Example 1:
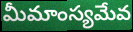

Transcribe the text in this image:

మీమాంస్యమేవ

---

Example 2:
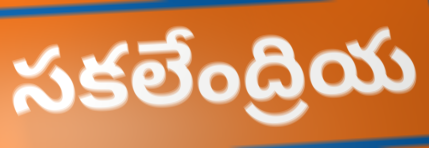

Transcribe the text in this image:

సకలేంద్రియ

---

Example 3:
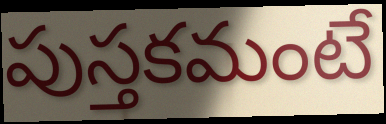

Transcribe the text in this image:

పుస్తకమంటే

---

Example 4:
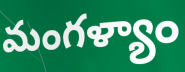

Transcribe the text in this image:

మంగళ్యాం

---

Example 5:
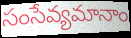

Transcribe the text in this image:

సంసేవ్యమానాం